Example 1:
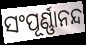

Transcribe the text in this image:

ସଂପୂର୍ଣ୍ଣାନନ୍ଦ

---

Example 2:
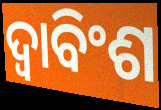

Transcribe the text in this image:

ଦ୍ଵାବିଂଶ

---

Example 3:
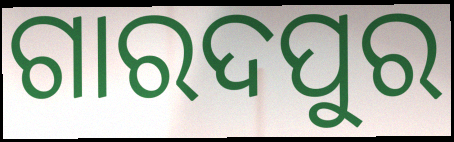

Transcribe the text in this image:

ଗାରଦପୁର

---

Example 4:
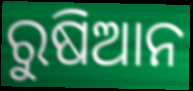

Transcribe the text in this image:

ରୁଷିଆନ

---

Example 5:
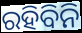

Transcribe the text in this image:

ରହିବିନି